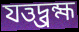
যত্তদ্ব্রহ্ম